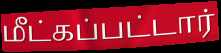
மீட்கப்பட்டார்